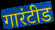
गारंटीड